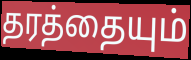
தரத்தையும்